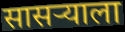
सासर्‍याला